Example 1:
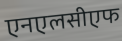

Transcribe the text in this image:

एनएलसीएफ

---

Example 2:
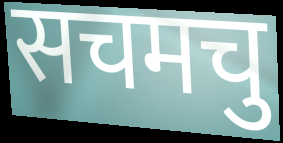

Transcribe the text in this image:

सचमचु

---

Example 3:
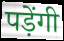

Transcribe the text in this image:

पड़ेंगी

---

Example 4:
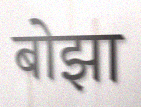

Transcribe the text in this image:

बोझा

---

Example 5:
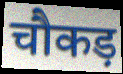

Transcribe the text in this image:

चौकड़